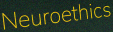
Neuroethics